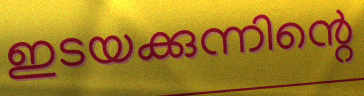
ഇടയക്കുന്നിന്റെ